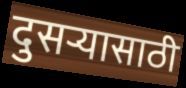
दुसऱ्यासाठी